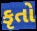
કૃતો